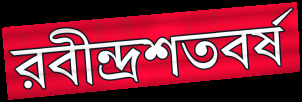
রবীন্দ্রশতবর্ষ